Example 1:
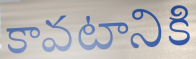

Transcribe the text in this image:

కావటానికి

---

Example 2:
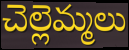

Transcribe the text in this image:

చెల్లెమ్మలు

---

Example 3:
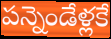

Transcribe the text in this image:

పన్నెండేళ్లకే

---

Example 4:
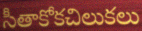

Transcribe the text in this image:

సీతాకోకచిలుకలు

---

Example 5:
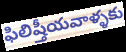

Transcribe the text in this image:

ఫిలిష్తీయవాళ్ళకు